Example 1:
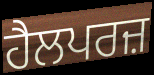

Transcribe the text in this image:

ਹੈਲਪਰਜ਼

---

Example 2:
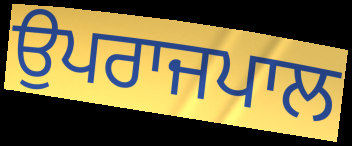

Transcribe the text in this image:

ਉਪਰਾਜਪਾਲ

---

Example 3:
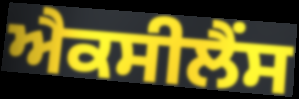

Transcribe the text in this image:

ਐਕਸੀਲੈਂਸ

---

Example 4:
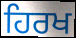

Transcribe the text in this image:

ਹਿਰਖ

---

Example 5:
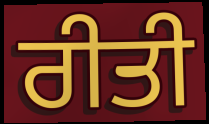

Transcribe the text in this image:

ਰੀਤੀ